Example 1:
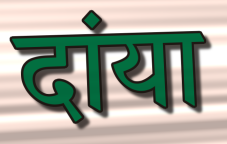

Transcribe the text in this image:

दांया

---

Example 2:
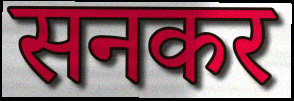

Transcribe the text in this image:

सनकर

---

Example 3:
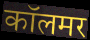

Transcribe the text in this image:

कॉलमर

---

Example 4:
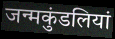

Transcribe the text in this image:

जन्मकुंडलियां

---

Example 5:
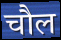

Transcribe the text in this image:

चौल